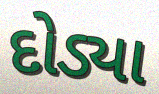
દોડ્યા